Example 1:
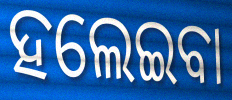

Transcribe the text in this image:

ହଲେଇବା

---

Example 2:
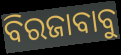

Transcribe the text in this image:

ବିରଜାବାବୁ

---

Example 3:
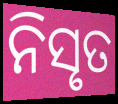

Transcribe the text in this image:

ନିସୃତ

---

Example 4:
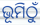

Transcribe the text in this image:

ଭୂମିଠୁଁ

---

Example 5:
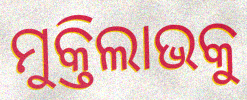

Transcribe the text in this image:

ମୁକ୍ତିଲାଭକୁ